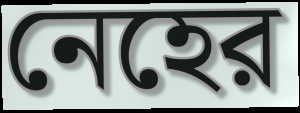
নেহের